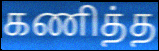
கணித்த